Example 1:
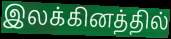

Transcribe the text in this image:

இலக்கினத்தில்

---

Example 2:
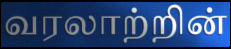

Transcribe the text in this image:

வரலாற்றின்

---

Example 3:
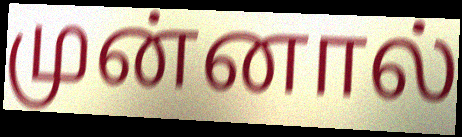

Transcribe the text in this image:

முன்னால்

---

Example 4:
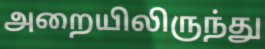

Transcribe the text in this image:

அறையிலிருந்து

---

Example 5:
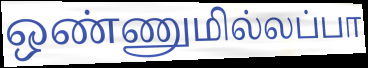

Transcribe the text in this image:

ஒண்ணுமில்லப்பா